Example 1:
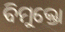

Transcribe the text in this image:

ବିମୁକ୍ତୋ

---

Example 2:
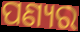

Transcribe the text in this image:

ପଣ୍ୟର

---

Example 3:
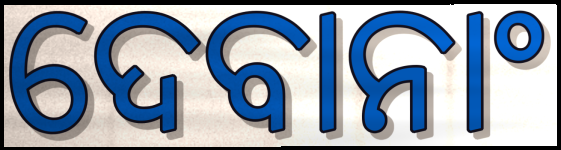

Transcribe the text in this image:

ଦେବାନାଂ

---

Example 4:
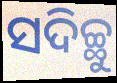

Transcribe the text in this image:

ସଦିଚ୍ଛୁ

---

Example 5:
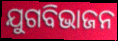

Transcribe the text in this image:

ଯୁଗବିଭାଜନ